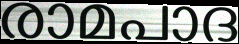
രാമപാദ